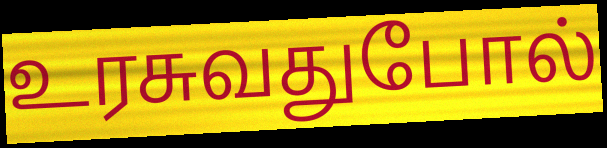
உரசுவதுபோல்